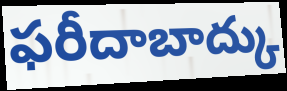
ఫరీదాబాద్కు